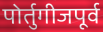
पोर्तुगीजपूर्व